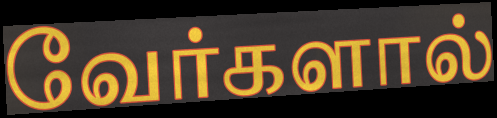
வேர்களால்